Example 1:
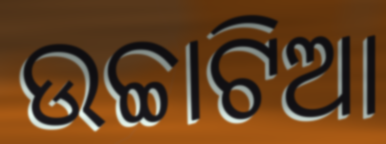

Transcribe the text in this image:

ଉଚ୍ଚାଟିଆ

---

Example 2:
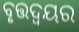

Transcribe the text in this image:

ବୃତ୍ତଦ୍ଵୟର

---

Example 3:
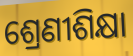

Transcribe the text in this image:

ଶ୍ରେଣୀଶିକ୍ଷା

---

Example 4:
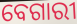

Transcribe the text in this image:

ବେଗାରୀ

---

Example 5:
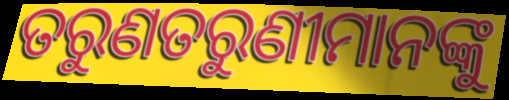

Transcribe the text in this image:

ତରୁଣତରୁଣୀମାନଙ୍କୁ